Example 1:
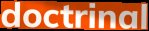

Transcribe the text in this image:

doctrinal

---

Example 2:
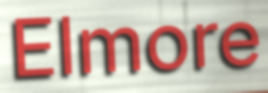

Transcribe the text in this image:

Elmore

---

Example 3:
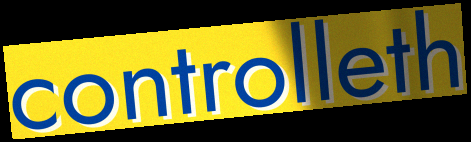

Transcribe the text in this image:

controlleth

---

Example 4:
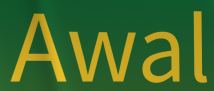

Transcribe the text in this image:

Awal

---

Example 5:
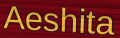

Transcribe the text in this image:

Aeshita